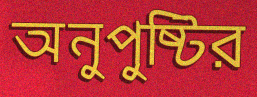
অনুপুষ্টির